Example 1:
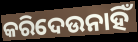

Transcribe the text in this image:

କରିଦେଉନାହିଁ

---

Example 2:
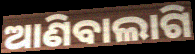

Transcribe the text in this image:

ଆଣିବାଲାଗି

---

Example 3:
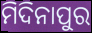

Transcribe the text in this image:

ମିଦିନାପୁର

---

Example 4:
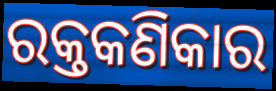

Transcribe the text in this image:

ରକ୍ତକଣିକାର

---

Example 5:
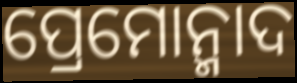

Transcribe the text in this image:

ପ୍ରେମୋନ୍ମାଦ